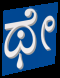
ಥೇ